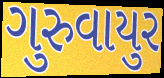
ગુરુવાયુર